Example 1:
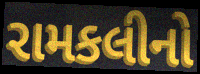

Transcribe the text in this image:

રામકલીનો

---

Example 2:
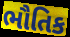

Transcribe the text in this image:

ભૌતિક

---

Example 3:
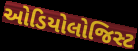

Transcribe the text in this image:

ઓડિયોલોજિસ્ટ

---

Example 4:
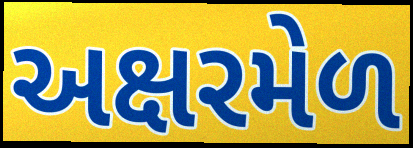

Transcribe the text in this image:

અક્ષરમેળ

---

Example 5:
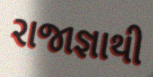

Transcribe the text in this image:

રાજાજ્ઞાથી